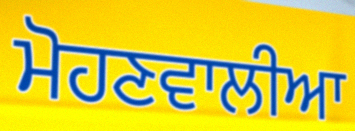
ਮੋਹਣਵਾਲੀਆ